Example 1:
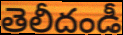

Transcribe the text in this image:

తెలీదండీ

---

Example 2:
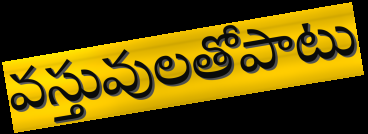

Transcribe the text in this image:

వస్తువులతోపాటు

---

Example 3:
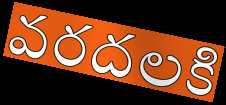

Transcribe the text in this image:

వరదలకి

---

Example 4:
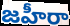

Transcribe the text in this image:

జహీరా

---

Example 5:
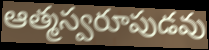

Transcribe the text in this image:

ఆత్మస్వరూపుడవు